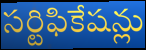
సర్టిఫికేషన్లు